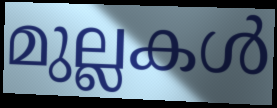
മുല്ലകൾ